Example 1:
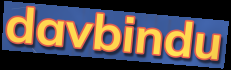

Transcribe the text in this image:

davbindu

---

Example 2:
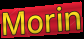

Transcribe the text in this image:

Morin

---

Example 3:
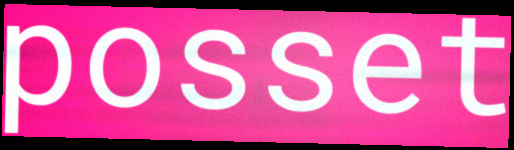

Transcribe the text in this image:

posset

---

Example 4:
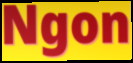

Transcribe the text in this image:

Ngon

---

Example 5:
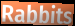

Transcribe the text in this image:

Rabbits